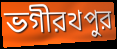
ভগীরথপুর